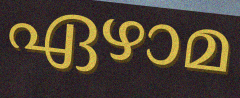
ഏഴാമ